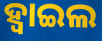
ହ୍ବାଇଲ